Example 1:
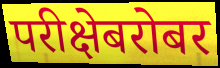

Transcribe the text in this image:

परीक्षेबरोबर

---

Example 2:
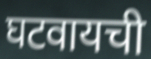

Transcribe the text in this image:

घटवायची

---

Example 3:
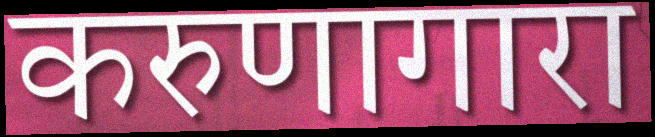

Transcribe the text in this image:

करुणागारा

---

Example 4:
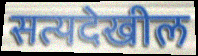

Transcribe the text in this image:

सत्यदेखील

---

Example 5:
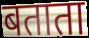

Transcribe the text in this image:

बताता